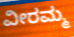
ವೀರಮ್ಮ